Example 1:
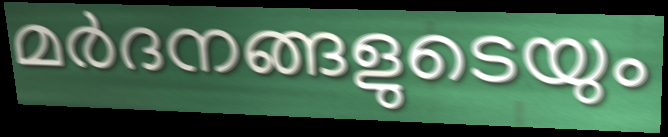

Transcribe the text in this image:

മർദനങ്ങളുടെയും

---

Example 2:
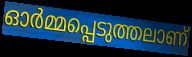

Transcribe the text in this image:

ഓർമ്മപ്പെടുത്തലാണ്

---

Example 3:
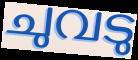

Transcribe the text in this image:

ചുവടു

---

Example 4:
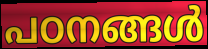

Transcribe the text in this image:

പഠനങ്ങൾ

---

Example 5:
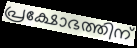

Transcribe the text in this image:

പ്രക്ഷോഭത്തിന്